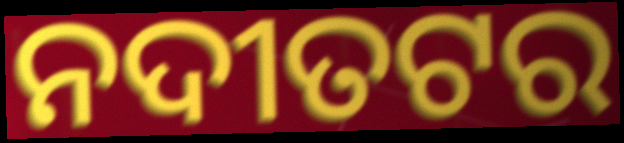
ନଦୀତଟର